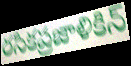
రసికప్రజాళికిన్